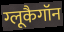
ग्लूकैगॉन